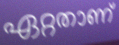
ഏറ്റതാണ്